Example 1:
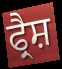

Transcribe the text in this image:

ਫ੍ਰੈਸ਼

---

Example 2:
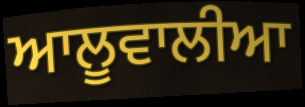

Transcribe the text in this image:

ਆਲੂਵਾਲੀਆ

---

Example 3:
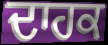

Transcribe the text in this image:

ਦਾਹਕ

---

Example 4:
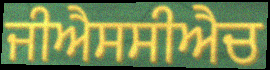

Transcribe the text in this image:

ਜੀਐਸਸੀਐਚ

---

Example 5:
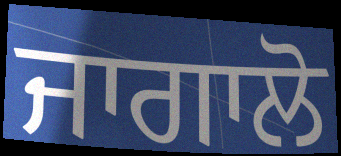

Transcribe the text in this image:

ਜਾਗਾਲੋ